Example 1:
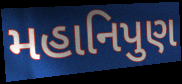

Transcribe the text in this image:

મહાનિપુણ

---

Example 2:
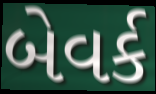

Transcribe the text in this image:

બેવર્ક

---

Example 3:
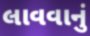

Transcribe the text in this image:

લાવવાનું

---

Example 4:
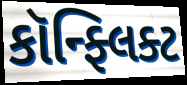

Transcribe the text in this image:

કૉન્ફ્લિક્ટ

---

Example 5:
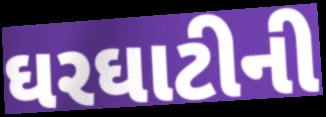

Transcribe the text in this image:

ઘરઘાટીની